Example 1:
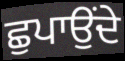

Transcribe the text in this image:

ਛੁਪਾਉਂਦੇ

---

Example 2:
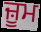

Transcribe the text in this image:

ਜ਼ੂਮ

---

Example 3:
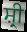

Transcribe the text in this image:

ਸ਼੍ਰੀ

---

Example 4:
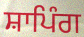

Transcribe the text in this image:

ਸ਼ਾਪਿੰਗ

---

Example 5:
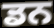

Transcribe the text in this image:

ਡਨ